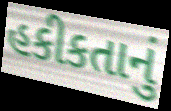
હકીકતાનું